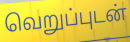
வெறுப்புடன்